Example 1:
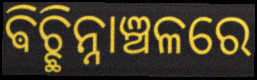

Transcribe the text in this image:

ଵିଚ୍ଛିନ୍ନାଞ୍ଚଳରେ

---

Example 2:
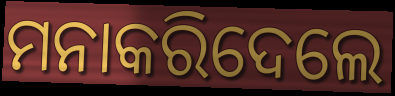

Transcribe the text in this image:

ମନାକରିଦେଲେ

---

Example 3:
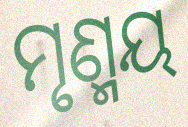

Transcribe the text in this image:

ମୃଣ୍ମୟ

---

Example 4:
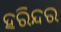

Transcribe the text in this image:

ହରିନ୍ଦର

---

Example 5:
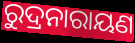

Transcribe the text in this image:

ରୁଦ୍ରନାରାୟଣ